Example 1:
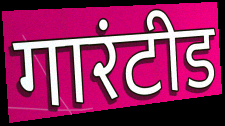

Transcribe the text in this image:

गारंटीड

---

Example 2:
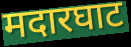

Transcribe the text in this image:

मदारघाट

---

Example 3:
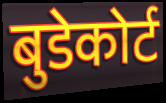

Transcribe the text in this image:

बुडेकोर्ट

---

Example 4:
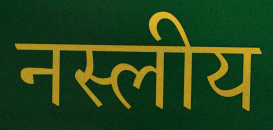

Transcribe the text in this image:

नस्लीय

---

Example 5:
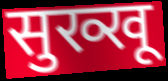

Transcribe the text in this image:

सुख्खू